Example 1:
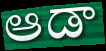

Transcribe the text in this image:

ఆడా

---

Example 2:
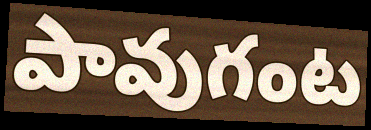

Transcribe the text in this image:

పావుగంట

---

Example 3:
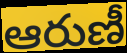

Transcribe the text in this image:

ఆరుణీ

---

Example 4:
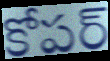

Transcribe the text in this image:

కోపర్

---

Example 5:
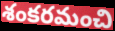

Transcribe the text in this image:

శంకరమంచి